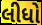
લીધો